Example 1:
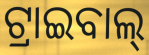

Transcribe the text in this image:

ଟ୍ରାଇବାଲ୍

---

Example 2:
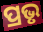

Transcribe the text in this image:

ପ୍ରଭୃ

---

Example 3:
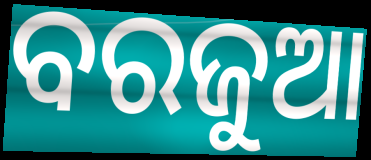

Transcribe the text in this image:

ବରଜୁଆ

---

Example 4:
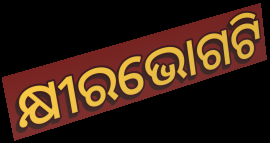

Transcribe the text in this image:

କ୍ଷୀରଭୋଗଟି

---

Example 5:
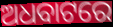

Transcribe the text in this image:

ଅଧବାଟରେ